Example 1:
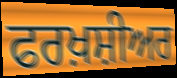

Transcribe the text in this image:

ਫਰਖ਼ਸ਼ੀਅਰ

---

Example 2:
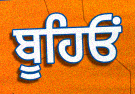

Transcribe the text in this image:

ਬੂਹਿਓਂ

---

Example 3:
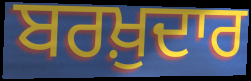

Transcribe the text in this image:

ਬਰਖ਼ੁਦਾਰ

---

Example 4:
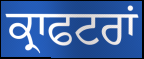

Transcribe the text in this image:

ਕ੍ਰਾਫਟਰਾਂ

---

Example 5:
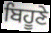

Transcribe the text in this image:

ਬਿਹੂਣੇ